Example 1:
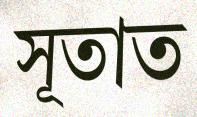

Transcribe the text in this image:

সূতাত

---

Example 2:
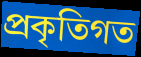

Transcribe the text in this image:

প্ৰকৃতিগত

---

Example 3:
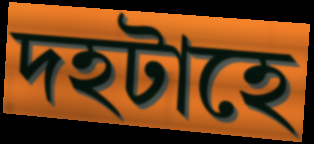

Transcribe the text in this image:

দহটাহে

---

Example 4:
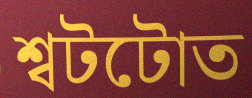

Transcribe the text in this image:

শ্বটটোত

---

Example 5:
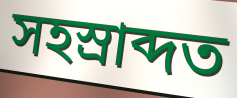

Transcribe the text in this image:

সহস্ৰাব্দত